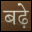
बढ़े